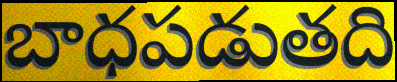
బాధపడుతది